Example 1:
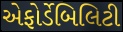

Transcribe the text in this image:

એફોર્ડેબિલિટી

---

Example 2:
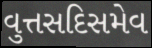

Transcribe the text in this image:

વુત્તસદિસમેવ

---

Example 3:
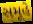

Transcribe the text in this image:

સમૂહે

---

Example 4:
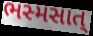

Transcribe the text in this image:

ભસ્મસાત્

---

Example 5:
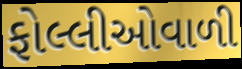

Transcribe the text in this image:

ફોલ્લીઓવાળી